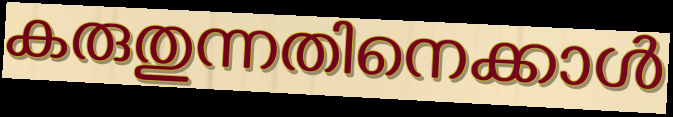
കരുതുന്നതിനെക്കാൾ